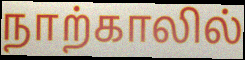
நாற்காலில்